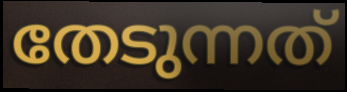
തേടുന്നത്